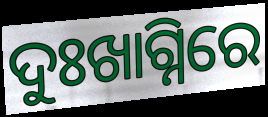
ଦୁଃଖାଗ୍ନିରେ